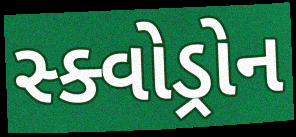
સ્ક્વોડ્રોન